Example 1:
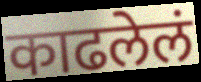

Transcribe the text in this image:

काढलेलं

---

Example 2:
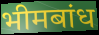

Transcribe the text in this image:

भीमबांध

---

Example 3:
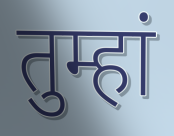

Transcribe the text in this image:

तुम्हां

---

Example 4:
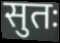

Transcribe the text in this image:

सुतः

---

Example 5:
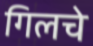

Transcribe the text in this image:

गिलचे